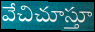
వేచిచూస్తూ